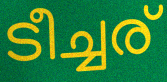
ടീച്ചര്